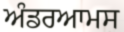
ਅੰਡਰਆਮਸ